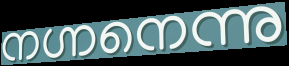
നഗ്നനെന്നു